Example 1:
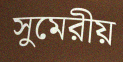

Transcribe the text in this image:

সুমেরীয়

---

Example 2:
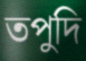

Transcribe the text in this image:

তপুদি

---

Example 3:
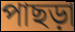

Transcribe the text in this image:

পাছড়া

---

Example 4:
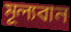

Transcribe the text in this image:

মূল্যবান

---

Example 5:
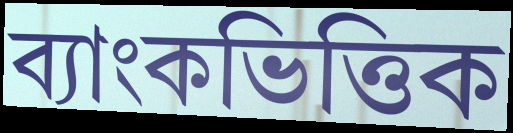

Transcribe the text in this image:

ব্যাংকভিত্তিক